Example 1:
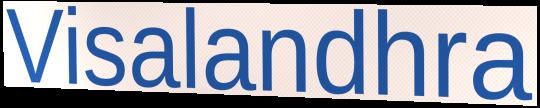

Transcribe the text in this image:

Visalandhra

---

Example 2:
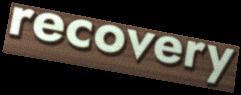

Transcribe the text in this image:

recovery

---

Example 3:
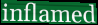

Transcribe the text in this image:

inflamed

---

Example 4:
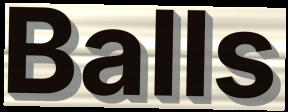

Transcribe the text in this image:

Balls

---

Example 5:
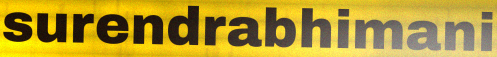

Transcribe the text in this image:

surendrabhimani